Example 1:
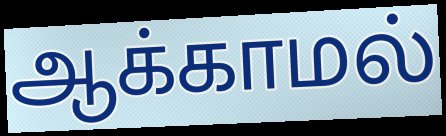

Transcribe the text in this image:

ஆக்காமல்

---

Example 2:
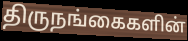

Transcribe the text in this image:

திருநங்கைகளின்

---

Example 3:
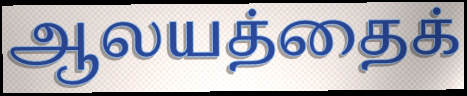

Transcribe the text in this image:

ஆலயத்தைக்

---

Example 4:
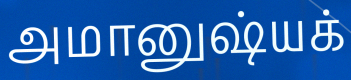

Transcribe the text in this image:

அமானுஷ்யக்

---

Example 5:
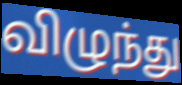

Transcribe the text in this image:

விழுந்து